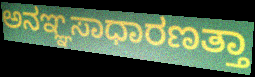
ಅನಞ್ಞಸಾಧಾರಣತ್ತಾ